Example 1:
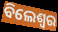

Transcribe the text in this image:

ବିଲେଶ୍ଵର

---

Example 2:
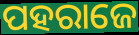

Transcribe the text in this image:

ପହରାଜେ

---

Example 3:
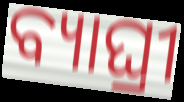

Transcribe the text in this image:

ବ୍ୟାଘ୍ରୀ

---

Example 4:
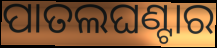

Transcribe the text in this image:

ପାତଲଘଣ୍ଟାର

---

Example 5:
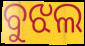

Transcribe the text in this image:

ବୁଝଲ